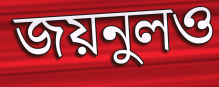
জয়নুলও